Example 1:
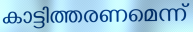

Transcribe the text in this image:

കാട്ടിത്തരണമെന്ന്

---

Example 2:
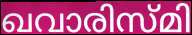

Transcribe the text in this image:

ഖവാരിസ്മി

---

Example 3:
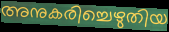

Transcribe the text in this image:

അനുകരിച്ചെഴുതിയ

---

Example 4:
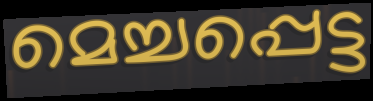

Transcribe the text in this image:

മെച്ചപ്പെട്ട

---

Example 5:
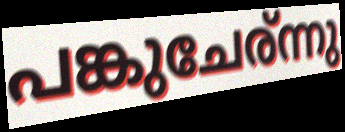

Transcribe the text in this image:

പങ്കുചേര്ന്നു